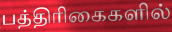
பத்திரிகைகளில்